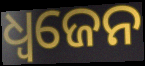
ଧ୍ଵଜେନ